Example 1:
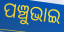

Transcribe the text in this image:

ପଞ୍ଚୁଭାଇ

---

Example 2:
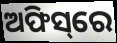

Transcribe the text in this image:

ଅଫିସ୍‌ରେ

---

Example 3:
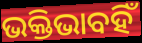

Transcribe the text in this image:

ଭକ୍ତିଭାବହିଁ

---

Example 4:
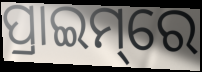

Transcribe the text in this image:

ପ୍ରାଇମ୍‌ରେ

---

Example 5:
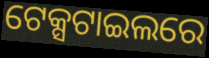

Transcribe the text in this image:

ଟେକ୍ସଟାଇଲରେ